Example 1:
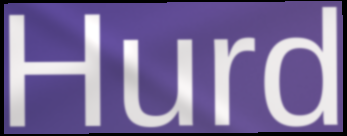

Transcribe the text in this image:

Hurd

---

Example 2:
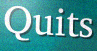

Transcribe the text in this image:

Quits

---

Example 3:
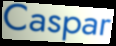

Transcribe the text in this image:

Caspar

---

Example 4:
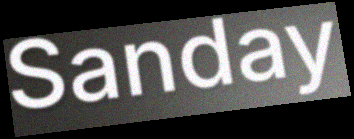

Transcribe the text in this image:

Sanday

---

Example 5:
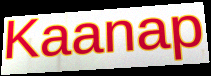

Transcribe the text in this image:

Kaanap